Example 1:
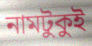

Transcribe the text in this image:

নামটুকুই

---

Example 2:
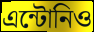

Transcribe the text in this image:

এন্টোনিও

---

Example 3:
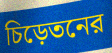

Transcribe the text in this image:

চিড়েতনের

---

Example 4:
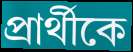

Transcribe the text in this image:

প্রার্থীকে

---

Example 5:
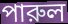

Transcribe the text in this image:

পারুল